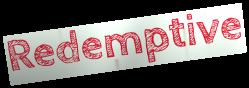
Redemptive